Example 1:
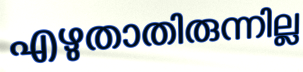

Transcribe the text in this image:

എഴുതാതിരുന്നില്ല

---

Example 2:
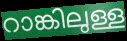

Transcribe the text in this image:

റാങ്കിലുള്ള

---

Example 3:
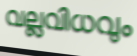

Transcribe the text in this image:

വല്ലവിധവും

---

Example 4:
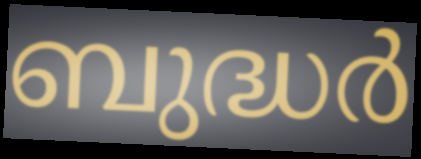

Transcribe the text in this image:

ബുദ്ധർ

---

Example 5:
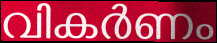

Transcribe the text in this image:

വികർണം